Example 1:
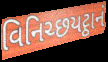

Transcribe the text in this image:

વિનિચ્છયટ્ઠાનં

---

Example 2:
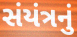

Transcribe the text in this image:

સંયંત્રનું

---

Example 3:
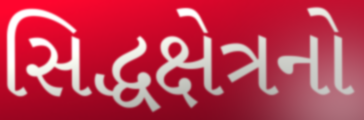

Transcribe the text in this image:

સિદ્ધક્ષેત્રનો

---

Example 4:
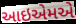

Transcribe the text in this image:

આઇએમએ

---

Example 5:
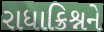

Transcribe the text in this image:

રાધાક્રિશ્નને